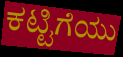
ಕಟ್ಟಿಗೆಯು